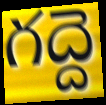
గద్దె